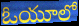
ఓయూలో